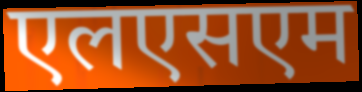
एलएसएम